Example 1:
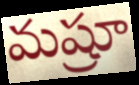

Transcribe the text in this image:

మష్రూ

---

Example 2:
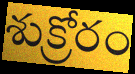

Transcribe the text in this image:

శుక్రోరం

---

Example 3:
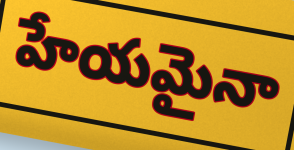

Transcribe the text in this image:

హేయమైనా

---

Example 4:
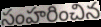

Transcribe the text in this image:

సంహరించిన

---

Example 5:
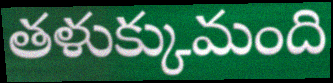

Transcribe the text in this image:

తళుక్కుమంది